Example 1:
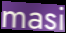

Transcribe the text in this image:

masi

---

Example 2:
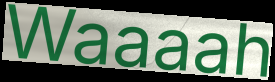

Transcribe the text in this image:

Waaaah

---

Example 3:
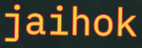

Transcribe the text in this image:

jaihok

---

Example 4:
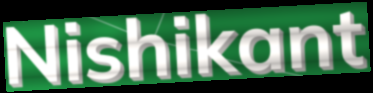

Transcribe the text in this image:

Nishikant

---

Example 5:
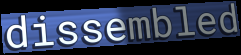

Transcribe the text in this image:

dissembled